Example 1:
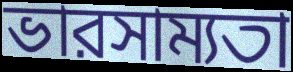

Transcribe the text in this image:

ভারসাম্যতা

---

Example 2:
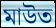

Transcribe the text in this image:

মাউত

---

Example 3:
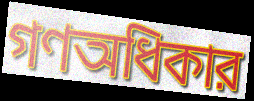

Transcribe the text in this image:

গণঅধিকার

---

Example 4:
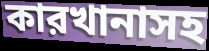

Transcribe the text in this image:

কারখানাসহ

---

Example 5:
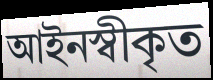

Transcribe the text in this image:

আইনস্বীকৃত